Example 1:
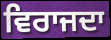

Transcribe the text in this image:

ਵਿਰਾਜਦਾ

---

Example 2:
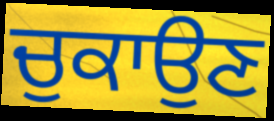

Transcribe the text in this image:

ਚੁਕਾਉਣ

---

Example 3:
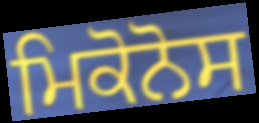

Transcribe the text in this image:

ਮਿਕੋਨੋਸ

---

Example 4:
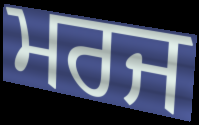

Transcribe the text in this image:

ਮਰਜ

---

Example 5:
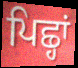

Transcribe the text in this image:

ਪਿਛ੍ਹਾਂ